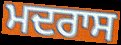
ਮਦਰਾਸ